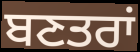
ਬਣਤਰਾਂ